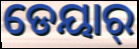
ଡେୟାର୍